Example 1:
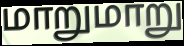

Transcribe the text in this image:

மாறுமாறு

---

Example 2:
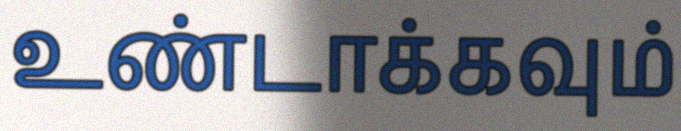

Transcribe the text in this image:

உண்டாக்கவும்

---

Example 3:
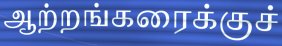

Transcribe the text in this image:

ஆற்றங்கரைக்குச்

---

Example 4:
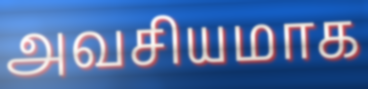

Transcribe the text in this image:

அவசியமாக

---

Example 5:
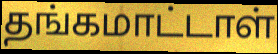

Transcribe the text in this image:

தங்கமாட்டாள்